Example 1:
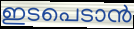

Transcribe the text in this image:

ഇടപെടാൻ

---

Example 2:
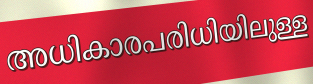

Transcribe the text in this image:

അധികാരപരിധിയിലുള്ള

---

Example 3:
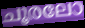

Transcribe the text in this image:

ചൂരലോ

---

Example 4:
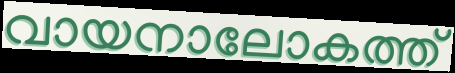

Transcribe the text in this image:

വായനാലോകത്ത്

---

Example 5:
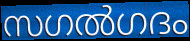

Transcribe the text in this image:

സഗൽഗദം